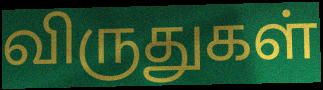
விருதுகள்